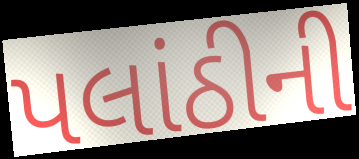
પલાંઠીની